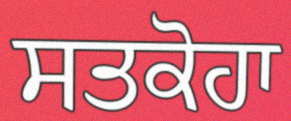
ਸਤਕੋਹਾ